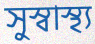
সুস্বাস্থ্য